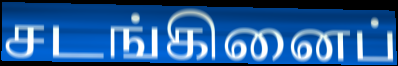
சடங்கினைப்